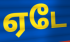
ஏடே